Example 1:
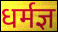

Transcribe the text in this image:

धर्मज्ञ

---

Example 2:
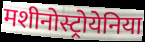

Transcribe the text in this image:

मशीनोस्ट्रोयेनिया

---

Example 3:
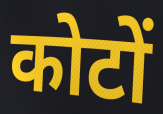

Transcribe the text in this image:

कोटों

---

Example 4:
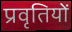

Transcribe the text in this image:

प्रवृतियों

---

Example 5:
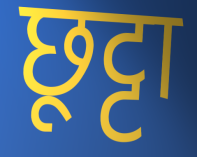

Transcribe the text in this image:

छूट्टा